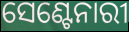
ସେଣ୍ଟେନାରୀ